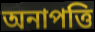
অনাপত্তি